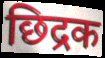
छिद्रक